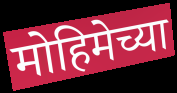
मोहिमेच्या